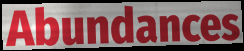
Abundances